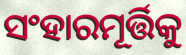
ସଂହାରମୂର୍ତ୍ତିକୁ